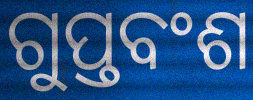
ଗୁପ୍ତବଂଶ